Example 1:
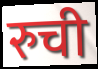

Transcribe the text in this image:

रुची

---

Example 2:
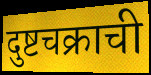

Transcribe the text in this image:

दुष्टचक्राची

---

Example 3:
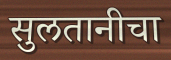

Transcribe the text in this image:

सुलतानीचा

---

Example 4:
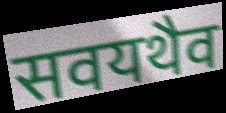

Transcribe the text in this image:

सवयथैव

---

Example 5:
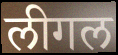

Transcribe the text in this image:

लीगल